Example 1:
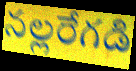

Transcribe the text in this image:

నల్లరేగడి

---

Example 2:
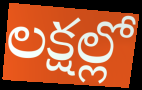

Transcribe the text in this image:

లక్షల్లో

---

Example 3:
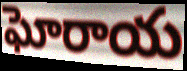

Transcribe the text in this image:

ఘోరాయ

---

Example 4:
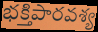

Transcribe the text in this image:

భక్తిపారవశ్య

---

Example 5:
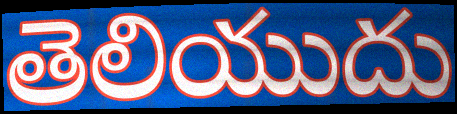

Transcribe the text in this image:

తెలియుదు